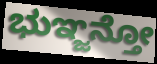
ಭುಞ್ಜನ್ತೋ